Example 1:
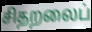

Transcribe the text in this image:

சிதறலைப்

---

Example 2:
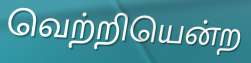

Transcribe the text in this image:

வெற்றியென்ற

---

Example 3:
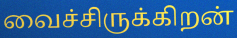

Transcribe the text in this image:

வைச்சிருக்கிறன்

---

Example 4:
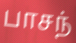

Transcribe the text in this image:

பாசந்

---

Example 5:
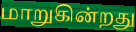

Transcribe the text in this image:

மாறுகின்றது